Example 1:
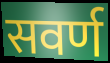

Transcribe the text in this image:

सवर्ण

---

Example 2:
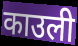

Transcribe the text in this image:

काउली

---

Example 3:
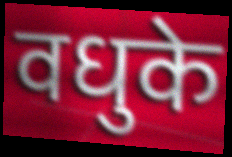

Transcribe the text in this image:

वधुके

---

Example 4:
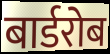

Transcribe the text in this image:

बार्डरोब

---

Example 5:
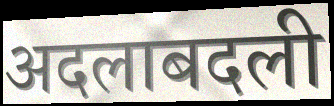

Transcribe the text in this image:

अदलाबदली